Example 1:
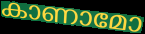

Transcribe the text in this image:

കാണാമോ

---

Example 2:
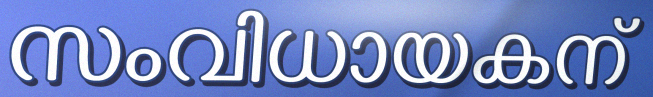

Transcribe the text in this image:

സംവിധായകന്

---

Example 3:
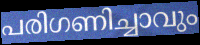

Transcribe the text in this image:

പരിഗണിച്ചാവും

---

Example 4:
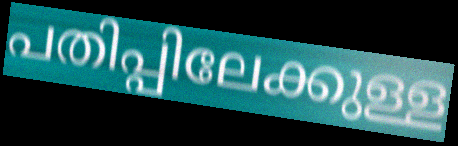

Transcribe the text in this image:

പതിപ്പിലേക്കുള്ള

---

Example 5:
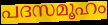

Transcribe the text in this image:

പദസമൂഹം